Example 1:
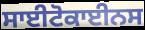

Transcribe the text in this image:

ਸਾਈਟੋਕਾਈਨਸ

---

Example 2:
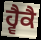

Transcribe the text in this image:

ਹ੍ਵੈਕੈ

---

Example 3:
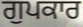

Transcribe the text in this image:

ਗੁਪਕਾਰ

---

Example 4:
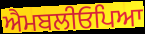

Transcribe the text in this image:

ਐਮਬਲੀਓਪਿਆ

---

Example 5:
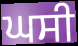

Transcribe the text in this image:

ਘਸੀ